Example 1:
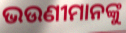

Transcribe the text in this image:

ଭଉଣୀମାନଙ୍କୁ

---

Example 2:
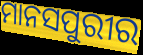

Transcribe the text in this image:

ମାନସପୁରୀର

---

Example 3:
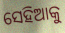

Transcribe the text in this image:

ସେହିଆକୁ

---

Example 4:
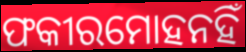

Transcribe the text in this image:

ଫକୀରମୋହନହିଁ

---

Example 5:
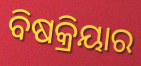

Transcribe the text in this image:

ବିଷକ୍ରିୟାର